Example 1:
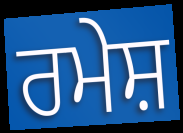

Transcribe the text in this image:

ਰਮੇਸ਼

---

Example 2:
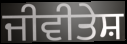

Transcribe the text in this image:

ਜੀਵੀਤੇਸ਼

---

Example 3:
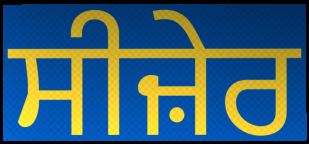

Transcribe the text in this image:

ਸੀਜ਼ੇਰ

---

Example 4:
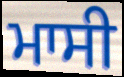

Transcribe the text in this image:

ਮਾਸੀ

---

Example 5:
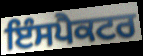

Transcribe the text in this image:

ਇੰਸਪੈਕਟਰ